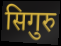
सिगुरु